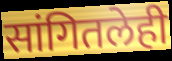
सांगितलेही